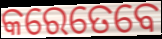
କରେତେବେ